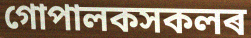
গোপালকসকলৰ